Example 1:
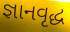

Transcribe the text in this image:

જ્ઞાનવૃદ્ધ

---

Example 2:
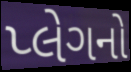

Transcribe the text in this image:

પ્લેગનો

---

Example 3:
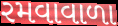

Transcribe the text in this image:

રમવાવાળા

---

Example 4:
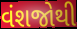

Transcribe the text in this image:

વંશજોથી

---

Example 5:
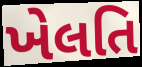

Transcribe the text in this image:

ખેલતિ